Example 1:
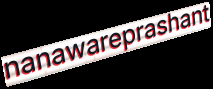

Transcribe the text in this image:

nanawareprashant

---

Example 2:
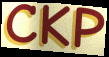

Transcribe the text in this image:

CKP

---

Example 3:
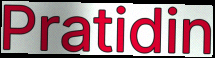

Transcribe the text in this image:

Pratidin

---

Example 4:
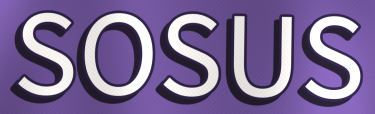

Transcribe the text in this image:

SOSUS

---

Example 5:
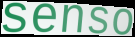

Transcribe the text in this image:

senso